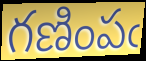
గణింపఁ